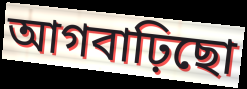
আগবাঢ়িছো